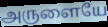
அருளையே